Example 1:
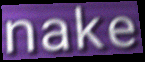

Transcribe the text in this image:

nake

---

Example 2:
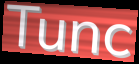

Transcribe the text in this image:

Tunc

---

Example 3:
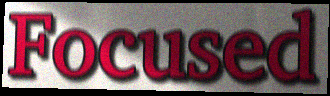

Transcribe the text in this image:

Focused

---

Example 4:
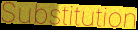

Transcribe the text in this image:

Substitution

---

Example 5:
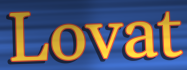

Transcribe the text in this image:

Lovat